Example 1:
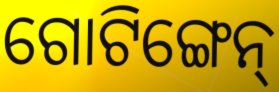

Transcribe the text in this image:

ଗୋଟିଙ୍ଗେନ୍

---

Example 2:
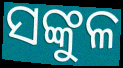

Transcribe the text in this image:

ସଙ୍କୁଳ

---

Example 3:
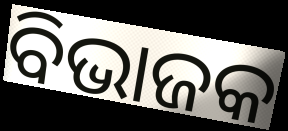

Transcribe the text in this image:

ବିଭାଜକ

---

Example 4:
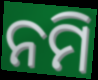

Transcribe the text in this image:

ନମି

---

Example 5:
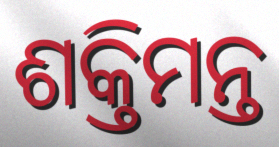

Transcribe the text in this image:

ଶକ୍ତିମନ୍ତ